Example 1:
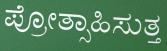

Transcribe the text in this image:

ಪ್ರೋತ್ಸಾಹಿಸುತ್ತ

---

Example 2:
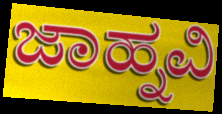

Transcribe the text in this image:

ಜಾಹ್ನವಿ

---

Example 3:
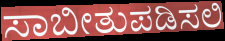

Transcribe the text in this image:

ಸಾಬೀತುಪಡಿಸಲಿ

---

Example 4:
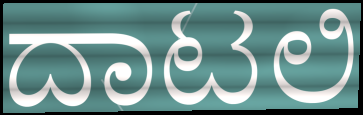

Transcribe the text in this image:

ದಾಟಲಿ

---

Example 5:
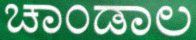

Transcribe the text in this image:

ಚಾಂಡಾಲ